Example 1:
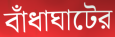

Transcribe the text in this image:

বাঁধাঘাটের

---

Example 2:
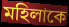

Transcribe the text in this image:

মহিলাকে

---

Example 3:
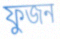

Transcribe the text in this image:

ফুজন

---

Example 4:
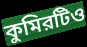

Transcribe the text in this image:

কুমিরটিও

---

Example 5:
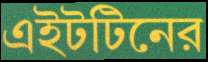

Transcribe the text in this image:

এইটটিনের